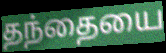
தந்தையை